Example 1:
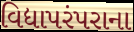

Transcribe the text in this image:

વિદ્યાપરંપરાના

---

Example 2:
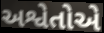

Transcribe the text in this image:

અશ્વેતોએ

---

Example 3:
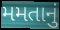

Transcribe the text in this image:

મમતાનું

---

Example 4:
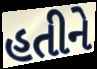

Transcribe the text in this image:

હતીને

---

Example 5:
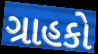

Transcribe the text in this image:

ગ્રાહકો